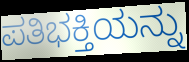
ಪತಿಭಕ್ತಿಯನ್ನು